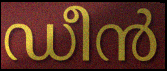
ഡീൻ